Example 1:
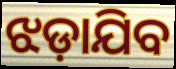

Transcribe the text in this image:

ଝଡ଼ାଯିବ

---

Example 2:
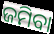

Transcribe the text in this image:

ଜମିବା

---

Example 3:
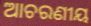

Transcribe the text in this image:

ଆଚରଣୀୟ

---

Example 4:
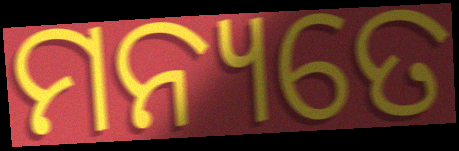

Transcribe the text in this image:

ମନ୍ୟତେ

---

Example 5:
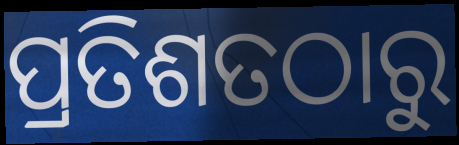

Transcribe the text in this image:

ପ୍ରତିଶତଠାରୁ